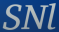
SNl